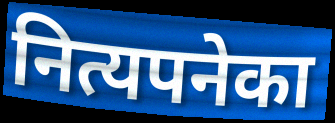
नित्यपनेका